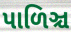
પાળિઞ્ચ